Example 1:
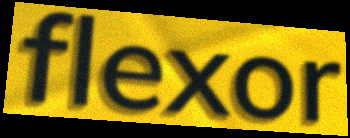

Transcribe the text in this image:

flexor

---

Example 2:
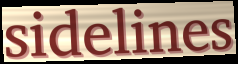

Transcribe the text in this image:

sidelines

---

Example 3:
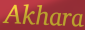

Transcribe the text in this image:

Akhara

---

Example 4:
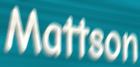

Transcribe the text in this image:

Mattson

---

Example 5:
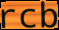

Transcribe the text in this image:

rcb